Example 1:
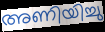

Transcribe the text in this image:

അണിയിച്ചു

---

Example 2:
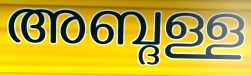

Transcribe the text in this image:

അബ്ദള്ള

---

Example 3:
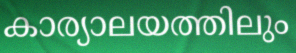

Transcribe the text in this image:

കാര്യാലയത്തിലും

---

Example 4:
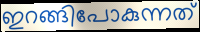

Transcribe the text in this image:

ഇറങ്ങിപോകുന്നത്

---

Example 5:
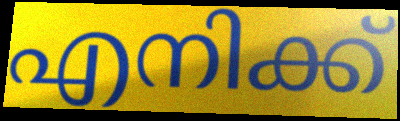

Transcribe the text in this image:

എനിക്ക്